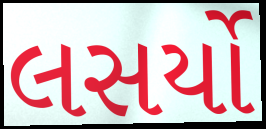
લસર્યો